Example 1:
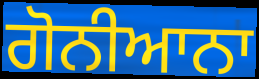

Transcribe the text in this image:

ਗੋਨੀਆਨਾ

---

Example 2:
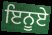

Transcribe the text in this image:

ਇਨੂਏ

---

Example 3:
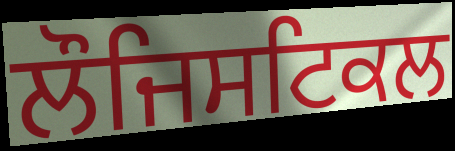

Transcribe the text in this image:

ਲੌਜਿਸਟਿਕਲ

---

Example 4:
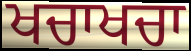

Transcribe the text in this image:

ਖਚਾਖਚਾ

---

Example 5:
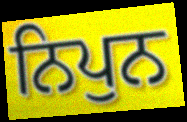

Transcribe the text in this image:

ਨਿਪੁਨ